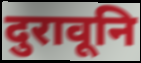
दुरावूनि